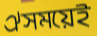
ঐসময়েই